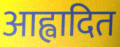
आह्वादित